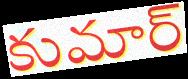
కుమార్